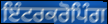
ਇੰਟਰਕਰੋਪਿੰਗ